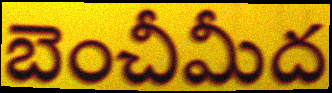
బెంచీమీద